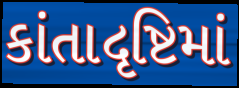
કાંતાદૃષ્ટિમાં